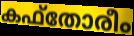
കഫ്തോരീം